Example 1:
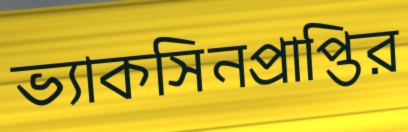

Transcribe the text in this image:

ভ্যাকসিনপ্রাপ্তির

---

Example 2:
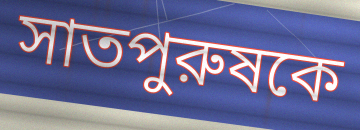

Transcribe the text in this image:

সাতপুরুষকে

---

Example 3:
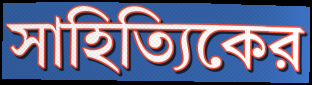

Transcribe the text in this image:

সাহিত্যিকের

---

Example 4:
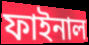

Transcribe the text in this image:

ফাইনাল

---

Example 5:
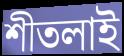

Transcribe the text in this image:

শীতলাই